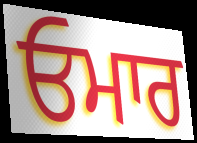
ਓਮਾਰ